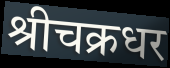
श्रीचक्रधर